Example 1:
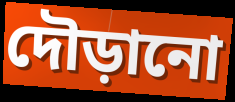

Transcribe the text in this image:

দৌড়ানো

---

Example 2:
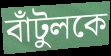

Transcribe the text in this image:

বাঁটুলকে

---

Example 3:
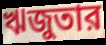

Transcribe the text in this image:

ঋজুতার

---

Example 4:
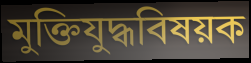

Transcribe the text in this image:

মুক্তিযুদ্ধবিষয়ক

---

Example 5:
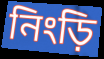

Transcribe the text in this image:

নিংড়ি